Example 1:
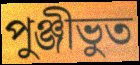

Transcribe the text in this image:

পুঞ্জীভুত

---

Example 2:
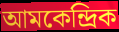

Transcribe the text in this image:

আমকেন্দ্রিক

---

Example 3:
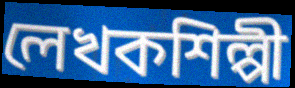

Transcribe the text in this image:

লেখকশিল্পী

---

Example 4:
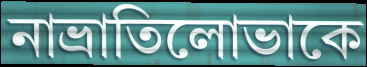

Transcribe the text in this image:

নাভ্রাতিলোভাকে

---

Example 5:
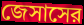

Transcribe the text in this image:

জেসাসের